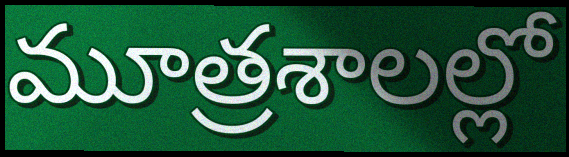
మూత్రశాలల్లో